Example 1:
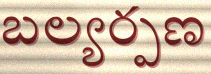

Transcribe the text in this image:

బల్యర్పణ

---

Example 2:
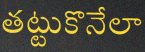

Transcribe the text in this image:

తట్టుకొనేలా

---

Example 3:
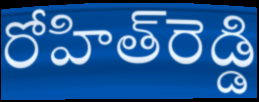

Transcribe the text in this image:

రోహిత్‌రెడ్డి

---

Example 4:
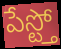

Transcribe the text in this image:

పేస్ట్తో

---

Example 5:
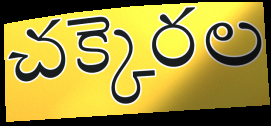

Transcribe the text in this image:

చక్కెరల